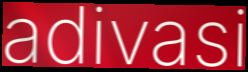
adivasi